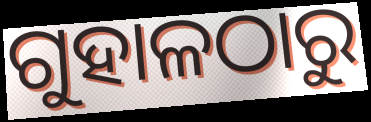
ଗୁହାଳଠାରୁ